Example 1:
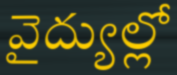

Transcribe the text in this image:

వైద్యుల్లో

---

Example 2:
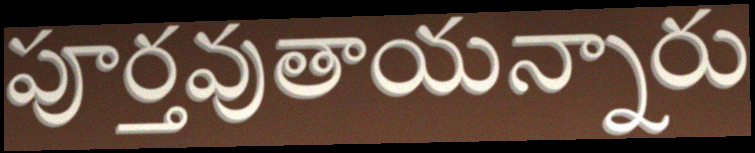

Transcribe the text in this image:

పూర్తవుతాయన్నారు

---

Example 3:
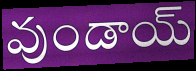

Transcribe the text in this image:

వుండాయ్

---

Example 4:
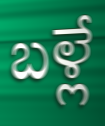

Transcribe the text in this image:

బళ్లే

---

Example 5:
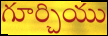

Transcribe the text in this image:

గూర్చియు